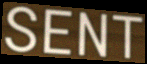
SENT